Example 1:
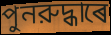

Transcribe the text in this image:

পুনৰুদ্ধাৰে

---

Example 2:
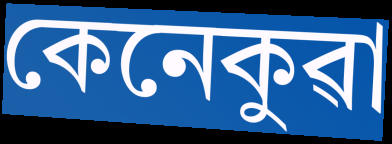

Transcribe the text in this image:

কেনেকুৱা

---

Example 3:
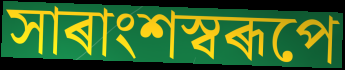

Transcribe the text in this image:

সাৰাংশস্বৰূপে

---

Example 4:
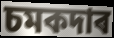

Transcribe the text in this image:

চমকদাৰ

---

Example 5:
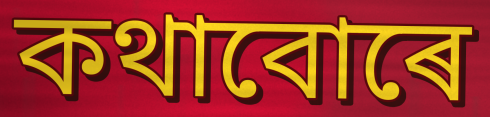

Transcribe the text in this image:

কথাবোৰে